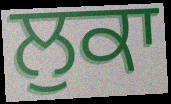
ਲੁਕਾ